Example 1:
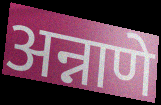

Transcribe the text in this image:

अन्नाणे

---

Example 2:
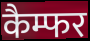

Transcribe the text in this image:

कैम्फर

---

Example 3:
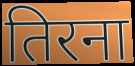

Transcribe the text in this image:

तिरना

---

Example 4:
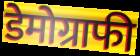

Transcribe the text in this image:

डेमोग्राफी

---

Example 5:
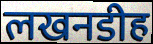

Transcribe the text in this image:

लखनडीह